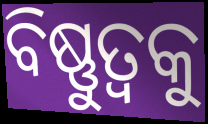
ବିଷ୍ଣୁତ୍ୱକୁ